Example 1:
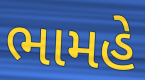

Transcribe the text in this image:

ભામહે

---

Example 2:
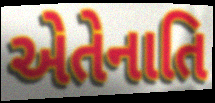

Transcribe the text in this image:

એતેનાતિ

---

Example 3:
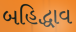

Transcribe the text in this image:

બહિદ્ધાવ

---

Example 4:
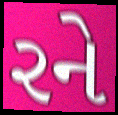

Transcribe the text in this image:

રને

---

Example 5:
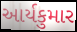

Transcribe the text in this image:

આર્યકુમાર